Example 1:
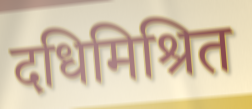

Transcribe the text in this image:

दधिमिश्रित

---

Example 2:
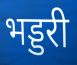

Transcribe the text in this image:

भड्डरी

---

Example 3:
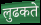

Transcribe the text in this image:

लुढकते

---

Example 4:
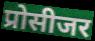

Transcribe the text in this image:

प्रोसीजर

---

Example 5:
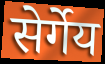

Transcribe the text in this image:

सेर्गेय